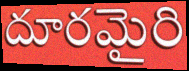
దూరమైరి